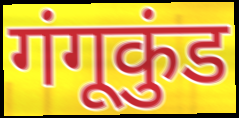
गंगूकुंड